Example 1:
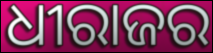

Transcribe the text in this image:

ଧୀରାଜର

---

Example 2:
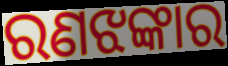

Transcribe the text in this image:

ରଣଝଙ୍କାର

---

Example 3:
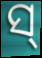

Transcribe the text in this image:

ସ୍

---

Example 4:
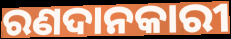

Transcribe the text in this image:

ରଣଦାନକାରୀ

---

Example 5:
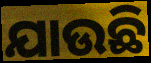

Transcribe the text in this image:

ଯାଉଛି